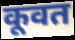
कूवत